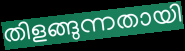
തിളങ്ങുന്നതായി